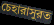
চেহারাসুরত